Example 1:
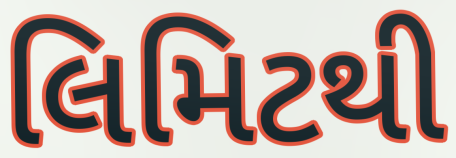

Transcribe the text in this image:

લિમિટથી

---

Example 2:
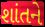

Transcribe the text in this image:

શાંતને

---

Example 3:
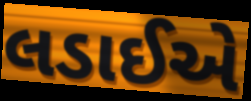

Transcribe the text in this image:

લડાઈએ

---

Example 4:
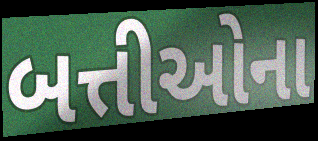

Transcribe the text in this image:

બત્તીઓના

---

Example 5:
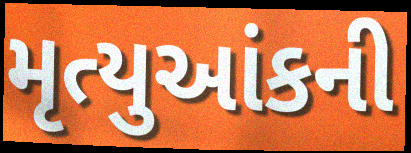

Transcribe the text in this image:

મૃત્યુઆંકની